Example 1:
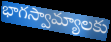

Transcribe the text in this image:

భాగస్వామ్యాలకు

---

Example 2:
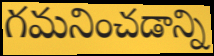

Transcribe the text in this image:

గమనించడాన్ని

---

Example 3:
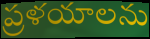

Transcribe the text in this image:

ప్రళయాలను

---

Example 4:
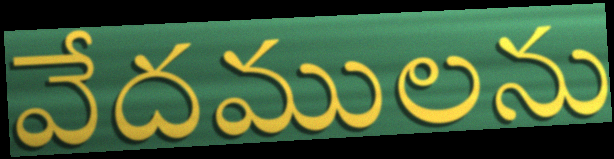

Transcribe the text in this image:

వేదములను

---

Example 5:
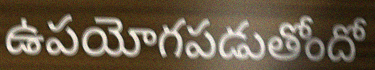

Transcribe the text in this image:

ఉపయోగపడుతోందో